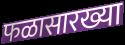
फळासारख्या